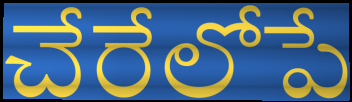
చేరేలోపే